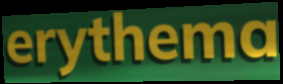
erythema